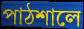
পাঠশালে